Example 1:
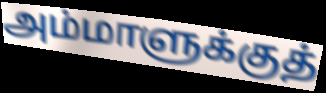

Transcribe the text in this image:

அம்மாளுக்குத்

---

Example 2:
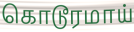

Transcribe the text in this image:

கொடூரமாய்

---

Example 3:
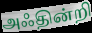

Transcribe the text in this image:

அஃதின்றி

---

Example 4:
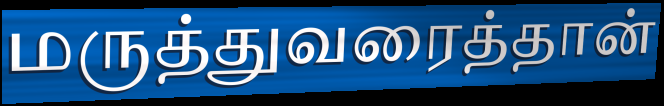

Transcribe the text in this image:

மருத்துவரைத்தான்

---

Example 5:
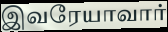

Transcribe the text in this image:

இவரேயாவார்